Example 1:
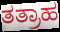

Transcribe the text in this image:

ತತ್ರಾಹ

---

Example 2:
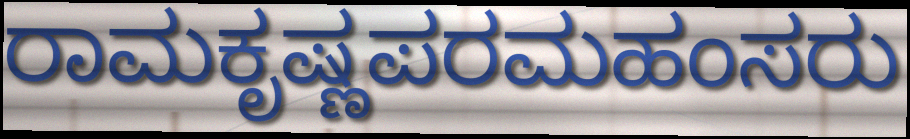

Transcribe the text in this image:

ರಾಮಕೃಷ್ಣಪರಮಹಂಸರು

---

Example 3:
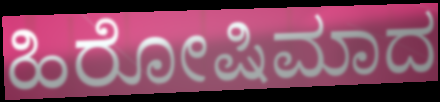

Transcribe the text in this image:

ಹಿರೋಷಿಮಾದ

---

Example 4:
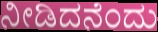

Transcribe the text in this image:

ನೀಡಿದನೆಂದು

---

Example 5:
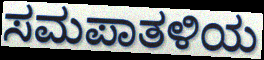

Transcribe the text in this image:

ಸಮಪಾತಳಿಯ